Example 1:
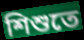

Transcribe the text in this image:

শিশুতে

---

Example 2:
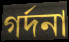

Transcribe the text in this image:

গর্দনা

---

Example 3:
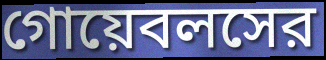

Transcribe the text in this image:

গোয়েবলসের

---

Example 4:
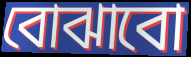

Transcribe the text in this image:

বোঝাবো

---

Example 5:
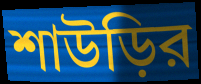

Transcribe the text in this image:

শাউড়ির